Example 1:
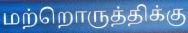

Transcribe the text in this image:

மற்றொருத்திக்கு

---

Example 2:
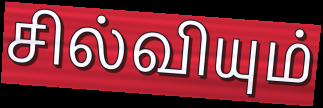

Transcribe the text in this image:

சில்வியும்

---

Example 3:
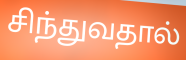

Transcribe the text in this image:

சிந்துவதால்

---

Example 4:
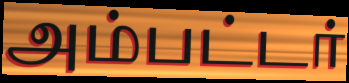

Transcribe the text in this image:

அம்பட்டர்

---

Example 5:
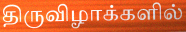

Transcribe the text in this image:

திருவிழாக்களில்